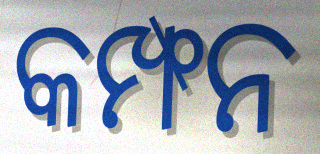
କମ୍ଫନ